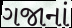
ગજાનાં